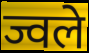
ज्वले